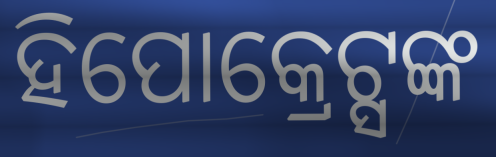
ହିପୋକ୍ରେଟ୍ସଙ୍କ